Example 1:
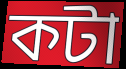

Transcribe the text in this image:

কটা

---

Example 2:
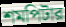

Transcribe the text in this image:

শমপিটার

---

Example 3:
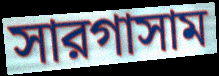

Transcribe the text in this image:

সারগাসাম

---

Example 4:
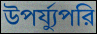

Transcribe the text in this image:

উপর্য্যুপরি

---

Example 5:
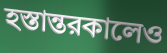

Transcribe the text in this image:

হস্তান্তরকালেও